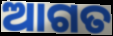
ଆଗତ